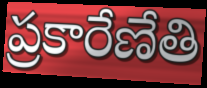
ప్రకారేణేతి